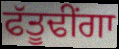
ਫੱਤੂਢੀਂਗਾ